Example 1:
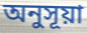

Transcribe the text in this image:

অনুসূয়া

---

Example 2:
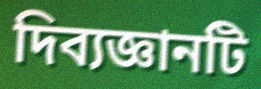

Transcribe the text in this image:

দিব্যজ্ঞানটি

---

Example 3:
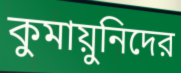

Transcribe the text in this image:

কুমায়ুনিদের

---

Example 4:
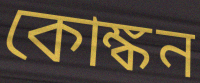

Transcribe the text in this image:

কোঙ্কন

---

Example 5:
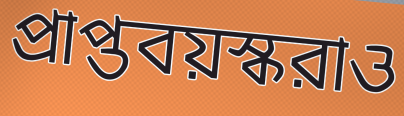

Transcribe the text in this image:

প্রাপ্তবয়স্করাও